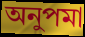
অনুপমা